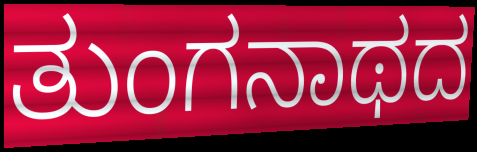
ತುಂಗನಾಥದ